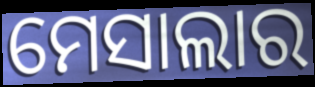
ମେସାଲାର